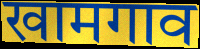
खामगाव